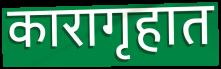
कारागृहात